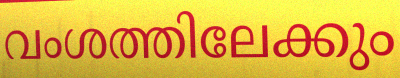
വംശത്തിലേക്കും